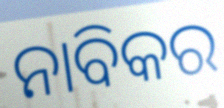
ନାବିକର